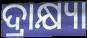
ଦ୍ରାକ୍ଷ୍ୟା